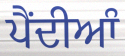
ਪੈੰਦੀਆੰ